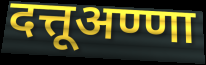
दत्तूअण्णा